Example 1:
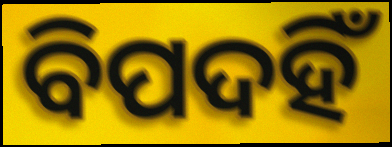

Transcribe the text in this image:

ବିପଦହିଁ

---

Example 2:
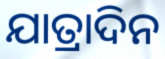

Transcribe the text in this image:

ଯାତ୍ରାଦିନ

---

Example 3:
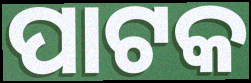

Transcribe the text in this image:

ପାଟକ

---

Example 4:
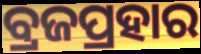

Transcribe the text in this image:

ବ୍ରଜପ୍ରହାର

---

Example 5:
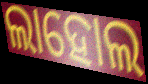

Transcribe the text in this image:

ଲାହୋଲ